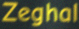
Zeghal